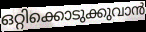
ഒറ്റിക്കൊടുക്കുവാൻ